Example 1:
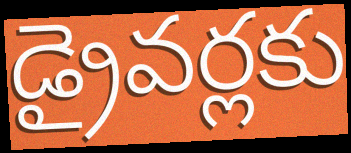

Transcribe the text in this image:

డ్రైవర్లకు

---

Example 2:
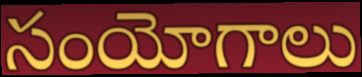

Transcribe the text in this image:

సంయోగాలు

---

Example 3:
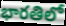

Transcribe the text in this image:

భారతిలో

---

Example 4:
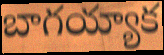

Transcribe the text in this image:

బాగయ్యాక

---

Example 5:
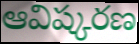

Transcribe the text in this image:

ఆవిష్కరణ